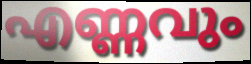
എണ്ണവും